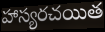
హాస్యరచయిత